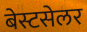
बेस्टसेलर